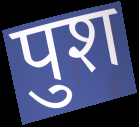
पुश